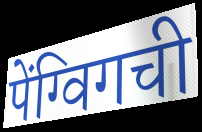
पेंग्विगची